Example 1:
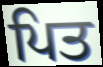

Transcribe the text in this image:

ਪਿਤ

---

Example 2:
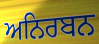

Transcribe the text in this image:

ਅਨਿਰਬਨ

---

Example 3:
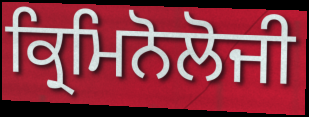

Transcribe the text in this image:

ਕ੍ਰਿਮਿਨੋਲੋਜੀ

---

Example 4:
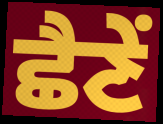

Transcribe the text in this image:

ਛੈਣੇਂ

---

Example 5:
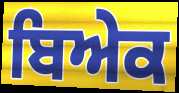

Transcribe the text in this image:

ਬਿਅੇਕ